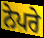
ਨੇਪਰੇ